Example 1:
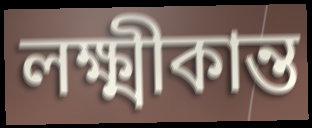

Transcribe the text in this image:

লক্ষ্মীকান্ত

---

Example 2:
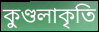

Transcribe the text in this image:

কুণ্ডলাকৃতি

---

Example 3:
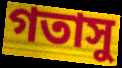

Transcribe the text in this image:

গতাসু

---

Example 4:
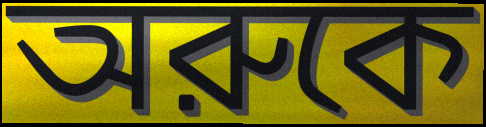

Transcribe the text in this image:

অরুকে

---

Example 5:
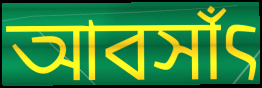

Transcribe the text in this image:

আবসাঁৎ